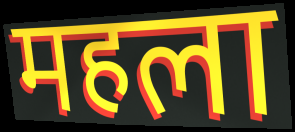
महला